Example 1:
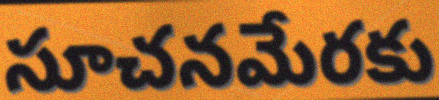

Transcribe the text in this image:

సూచనమేరకు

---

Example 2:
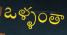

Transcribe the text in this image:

ఒళ్ళంతా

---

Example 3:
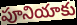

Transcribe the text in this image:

పూనియాకు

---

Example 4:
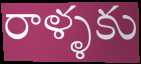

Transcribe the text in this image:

రాళ్ళకు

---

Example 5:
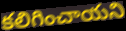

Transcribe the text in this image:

కలిగించాయని